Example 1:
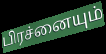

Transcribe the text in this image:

பிரச்னையும்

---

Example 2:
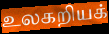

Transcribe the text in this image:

உலகறியக்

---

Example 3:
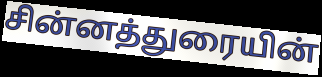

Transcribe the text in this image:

சின்னத்துரையின்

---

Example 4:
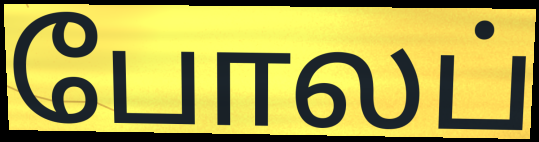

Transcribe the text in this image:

போலப்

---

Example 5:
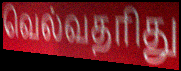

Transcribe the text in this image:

வெல்வதரிது